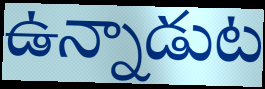
ఉన్నాడుట